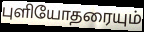
புளியோதரையும்